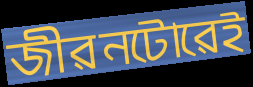
জীৱনটোৱেই